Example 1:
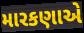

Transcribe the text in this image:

મારકણાએ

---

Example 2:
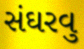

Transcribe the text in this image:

સંઘરવુ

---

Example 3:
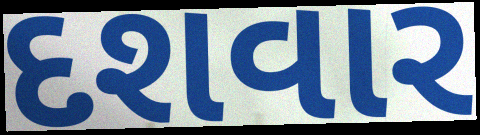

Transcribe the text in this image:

દશવાર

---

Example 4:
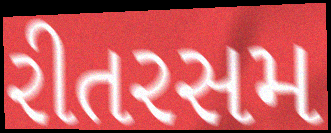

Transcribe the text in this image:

રીતરસમ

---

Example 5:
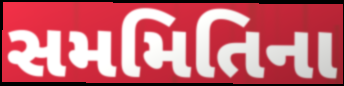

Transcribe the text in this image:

સમમિતિના